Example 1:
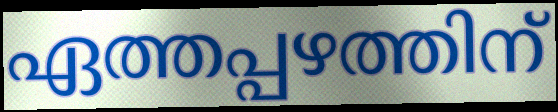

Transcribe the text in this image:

ഏത്തപ്പഴത്തിന്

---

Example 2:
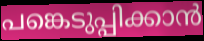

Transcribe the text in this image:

പങ്കെടുപ്പിക്കാൻ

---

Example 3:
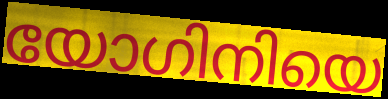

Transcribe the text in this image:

യോഗിനിയെ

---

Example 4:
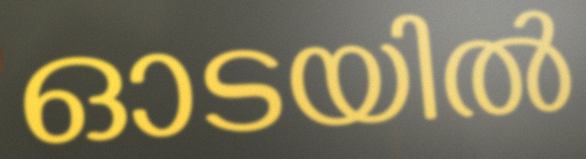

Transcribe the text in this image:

ഓടയിൽ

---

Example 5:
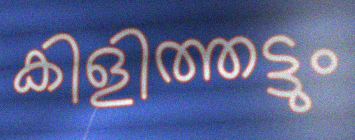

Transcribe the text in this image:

കിളിത്തട്ടും